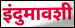
इंदुमावशी